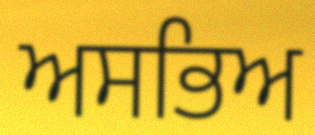
ਅਸਭਿਅ